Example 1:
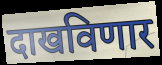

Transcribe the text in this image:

दाखविणार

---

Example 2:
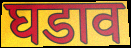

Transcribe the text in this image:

घडाव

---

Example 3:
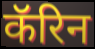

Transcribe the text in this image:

कॅरिन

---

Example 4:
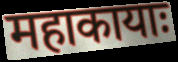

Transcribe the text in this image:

महाकायाः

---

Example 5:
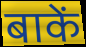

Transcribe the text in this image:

बाकें